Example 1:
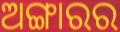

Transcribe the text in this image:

ଅଙ୍ଗାରର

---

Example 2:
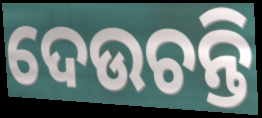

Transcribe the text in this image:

ଦେଉଚନ୍ତି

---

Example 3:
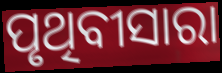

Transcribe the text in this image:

ପୃଥିବୀସାରା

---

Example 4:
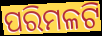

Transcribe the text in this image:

ପରିମଳଟି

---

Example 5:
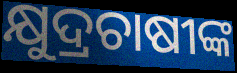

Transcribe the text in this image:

କ୍ଷୁଦ୍ରଚାଷୀଙ୍କ